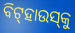
ବିଟ୍‌ହାଉସ୍‌କୁ